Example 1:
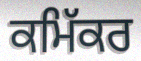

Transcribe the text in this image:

ਕਮਿੱਕਰ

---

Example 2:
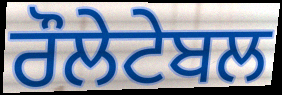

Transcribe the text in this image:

ਰੌਲੇਟੇਬਲ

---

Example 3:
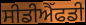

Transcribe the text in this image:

ਸੀਡੀਐੱਫਡੀ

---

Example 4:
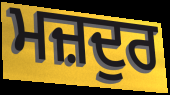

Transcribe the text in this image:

ਮਜ਼ਦੁਰ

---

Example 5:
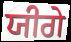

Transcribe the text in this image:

ਯੀਗੇ